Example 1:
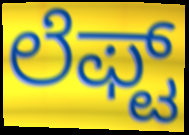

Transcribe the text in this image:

ಲೆಫ್ಟ್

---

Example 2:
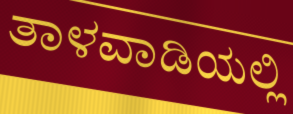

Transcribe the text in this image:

ತಾಳವಾಡಿಯಲ್ಲಿ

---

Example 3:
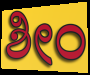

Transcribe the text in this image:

ಶೀಂ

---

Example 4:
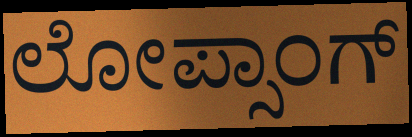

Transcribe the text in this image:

ಲೋಪ್ಸಾಂಗ್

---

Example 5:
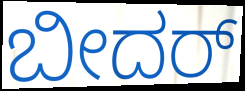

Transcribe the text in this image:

ಬೀದರ್